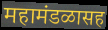
महामंडळासह